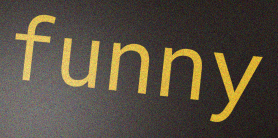
funny